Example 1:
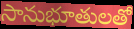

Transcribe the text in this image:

సానుభూతులతో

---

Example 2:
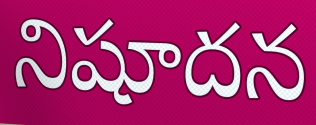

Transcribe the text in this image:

నిషూదన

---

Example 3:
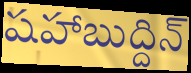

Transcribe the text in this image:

షహాబుద్దిన్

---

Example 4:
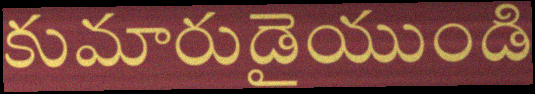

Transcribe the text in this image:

కుమారుడైయుండి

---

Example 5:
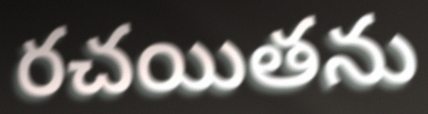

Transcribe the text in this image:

రచయితను